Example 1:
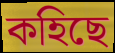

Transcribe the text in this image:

কহিছে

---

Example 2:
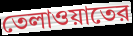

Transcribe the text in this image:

তেলাওয়াতের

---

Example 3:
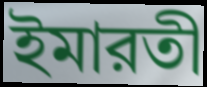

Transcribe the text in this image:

ইমারতী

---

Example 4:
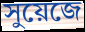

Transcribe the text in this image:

সুয়েজে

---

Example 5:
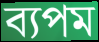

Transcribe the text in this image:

ব্যপম